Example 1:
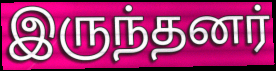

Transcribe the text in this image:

இருந்தனர்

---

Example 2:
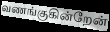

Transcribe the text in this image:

வணங்குகின்றேன்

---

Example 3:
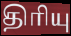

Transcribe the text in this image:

திரியு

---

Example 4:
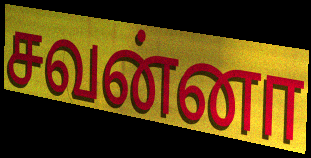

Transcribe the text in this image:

சவன்னா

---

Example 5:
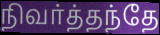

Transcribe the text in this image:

நிவர்த்தந்தே